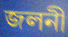
জলনী